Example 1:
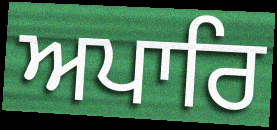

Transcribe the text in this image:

ਅਪਾਰਿ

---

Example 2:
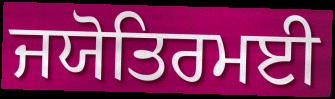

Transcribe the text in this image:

ਜਯੋਤਿਰਮਈ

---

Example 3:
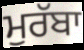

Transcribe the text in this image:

ਮੁਰੱਬਾ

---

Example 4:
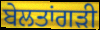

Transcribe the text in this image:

ਬੇਲਤਾਂਗੜੀ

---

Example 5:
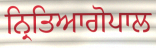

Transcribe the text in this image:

ਨ੍ਰਿਤਿਆਗੋਪਾਲ